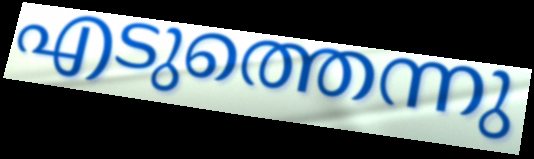
എടുത്തെന്നു